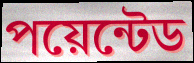
পয়েন্টেড